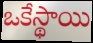
ఒకేస్థాయి